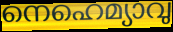
നെഹെമ്യാവു